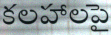
కలహాలపై